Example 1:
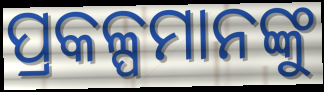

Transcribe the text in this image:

ପ୍ରକଳ୍ପମାନଙ୍କୁ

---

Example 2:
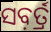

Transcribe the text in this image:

ସବ଼ର୍ତ୍ର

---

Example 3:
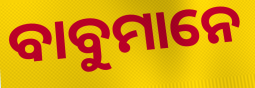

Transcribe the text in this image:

ବାବୁମାନେ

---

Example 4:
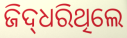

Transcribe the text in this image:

ଜିଦ୍‌ଧରିଥିଲେ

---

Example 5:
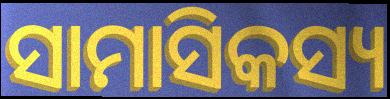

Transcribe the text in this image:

ସାମାସିକସ୍ୟ